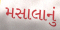
મસાલાનું